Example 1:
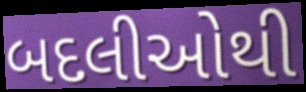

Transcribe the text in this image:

બદલીઓથી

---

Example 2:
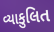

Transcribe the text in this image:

વ્યાકુલિત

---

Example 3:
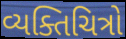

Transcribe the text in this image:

વ્યક્તિચિત્રો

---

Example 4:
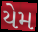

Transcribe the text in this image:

યેમ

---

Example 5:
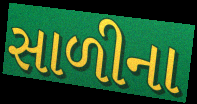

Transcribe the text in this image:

સાળીના